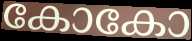
കോകോ